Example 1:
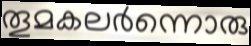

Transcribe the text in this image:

തൂമകലർന്നൊരു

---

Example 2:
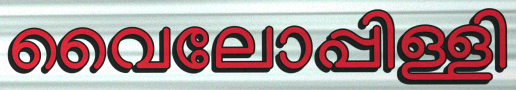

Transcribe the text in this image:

വൈലോപ്പിള്ളി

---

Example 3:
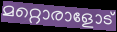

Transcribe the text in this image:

മറ്റൊരാളോട്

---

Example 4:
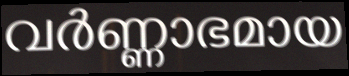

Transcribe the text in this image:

വർണ്ണാഭമായ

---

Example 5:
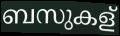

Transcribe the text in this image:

ബസുകള്